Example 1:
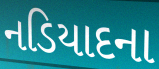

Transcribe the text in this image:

નડિયાદના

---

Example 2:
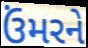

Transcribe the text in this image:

ઉંમરને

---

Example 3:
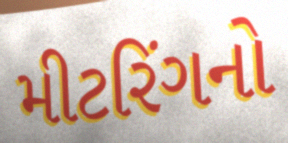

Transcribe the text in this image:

મીટરિંગનો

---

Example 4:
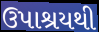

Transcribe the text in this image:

ઉપાશ્રયથી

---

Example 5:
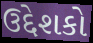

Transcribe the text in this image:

ઉદ્દેશકો